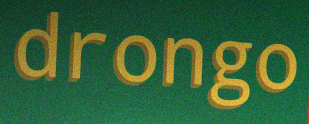
drongo